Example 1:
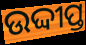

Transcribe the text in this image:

ଉଦ୍ଦୀପ୍ତ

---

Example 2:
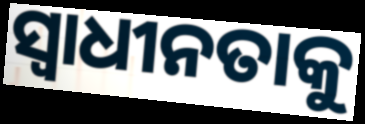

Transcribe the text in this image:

ସ୍ୱାଧୀନତାକୁ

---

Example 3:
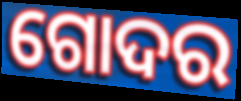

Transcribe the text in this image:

ଗୋଦର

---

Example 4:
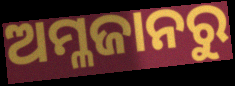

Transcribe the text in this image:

ଅମ୍ଳଜାନରୁ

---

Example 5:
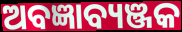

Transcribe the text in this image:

ଅବଜ୍ଞାବ୍ୟଞ୍ଜକ